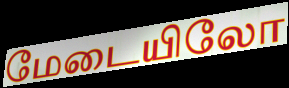
மேடையிலோ